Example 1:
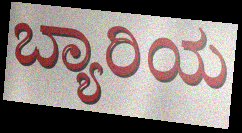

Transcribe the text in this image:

ಬ್ಯಾರಿಯ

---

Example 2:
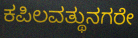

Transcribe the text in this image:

ಕಪಿಲವತ್ಥುನಗರೇ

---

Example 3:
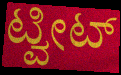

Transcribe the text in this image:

ಟ್ವೀಟ್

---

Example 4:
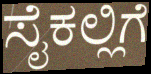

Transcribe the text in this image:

ಸೈಕಲ್ಲಿಗೆ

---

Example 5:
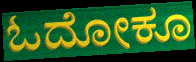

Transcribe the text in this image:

ಓದೋಕೂ